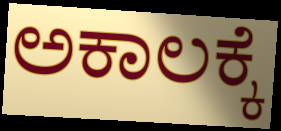
ಅಕಾಲಕ್ಕೆ